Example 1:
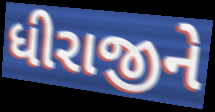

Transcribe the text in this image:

ધીરાજીને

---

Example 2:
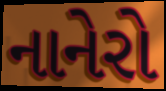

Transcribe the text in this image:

નાનેરો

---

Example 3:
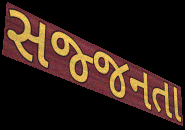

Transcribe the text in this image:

સજ્જનતા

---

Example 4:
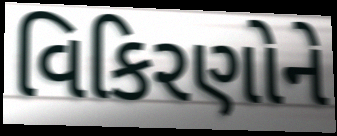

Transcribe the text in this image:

વિકિરણોને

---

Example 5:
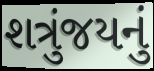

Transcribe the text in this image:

શત્રુંજયનું